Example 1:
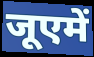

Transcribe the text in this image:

जूएमें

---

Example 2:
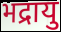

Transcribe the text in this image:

भद्रायु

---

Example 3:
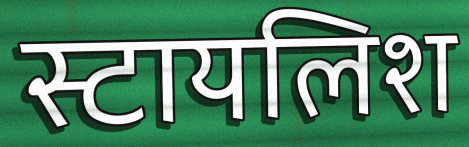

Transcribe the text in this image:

स्टायलिश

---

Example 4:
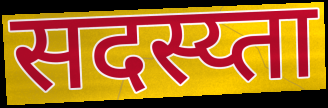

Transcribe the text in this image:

सदस्य्ता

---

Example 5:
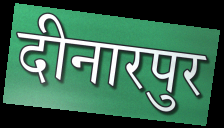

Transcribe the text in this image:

दीनारपुर